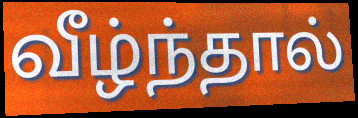
வீழ்ந்தால்